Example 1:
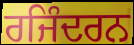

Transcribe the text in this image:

ਰਜਿੰਦਰਨ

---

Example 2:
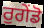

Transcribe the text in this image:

ਰੁਗੇਂਡੋ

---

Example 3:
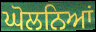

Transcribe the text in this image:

ਘੋਲਨਿਆਂ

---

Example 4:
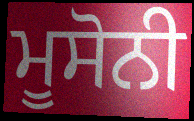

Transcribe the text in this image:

ਮੂਸੋਨੀ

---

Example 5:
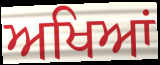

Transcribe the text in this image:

ਅਖਿਆਂ